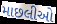
માછલીઓ